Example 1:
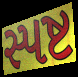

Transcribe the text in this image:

સ્પષ્ટ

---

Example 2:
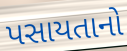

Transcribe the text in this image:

પસાયતાનો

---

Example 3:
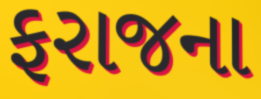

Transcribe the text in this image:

ફરાજના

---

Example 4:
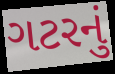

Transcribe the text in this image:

ગટરનું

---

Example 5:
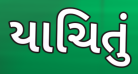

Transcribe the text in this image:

યાચિતું